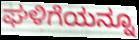
ಘಳಿಗೆಯನ್ನೂ